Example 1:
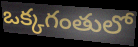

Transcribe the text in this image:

ఒక్కగంతులో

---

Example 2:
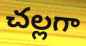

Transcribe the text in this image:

చల్లగా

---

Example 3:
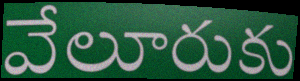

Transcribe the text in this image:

వేలూరుకు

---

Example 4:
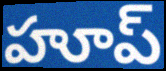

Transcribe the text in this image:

హూప్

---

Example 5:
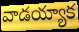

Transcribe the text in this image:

వాడయ్యాక